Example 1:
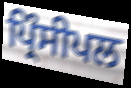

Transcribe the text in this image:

ਪ੍ਰਿੰਸੀਪਲ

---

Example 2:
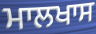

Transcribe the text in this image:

ਮਾਲਖਾਸ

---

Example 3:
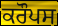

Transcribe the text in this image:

ਕਰੌਪਸ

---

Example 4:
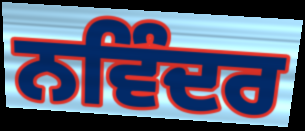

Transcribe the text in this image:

ਨਵਿੰਦਰ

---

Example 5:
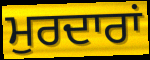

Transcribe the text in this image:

ਮੁਰਦਾਰਾਂ